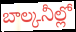
బాల్కనీల్లో